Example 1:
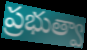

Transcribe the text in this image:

ప్రభుత్వా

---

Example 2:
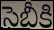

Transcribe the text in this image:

సెబీకి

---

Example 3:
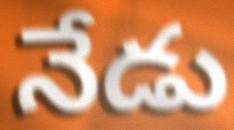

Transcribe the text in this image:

నేడు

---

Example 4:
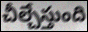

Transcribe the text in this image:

చీల్చేస్తుంది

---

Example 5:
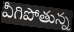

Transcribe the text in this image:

వీగిపోతున్న